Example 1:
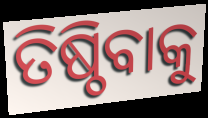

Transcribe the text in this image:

ତିଷ୍ଠିବାକୁ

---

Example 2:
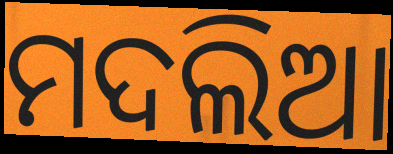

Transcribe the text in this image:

ମଦଲିଆ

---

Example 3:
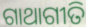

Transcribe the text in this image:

ଗାଥାଗୀତି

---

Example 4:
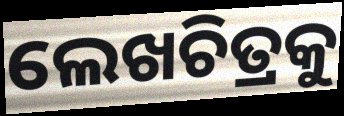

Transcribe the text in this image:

ଲେଖଚିତ୍ରକୁ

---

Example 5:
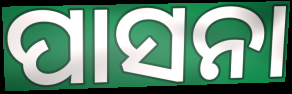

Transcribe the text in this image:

ପାସନା